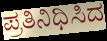
ಪ್ರತಿನಿಧಿಸಿದ